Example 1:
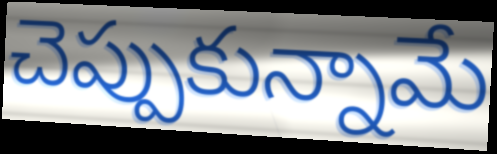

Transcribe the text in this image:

చెప్పుకున్నామే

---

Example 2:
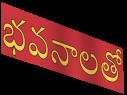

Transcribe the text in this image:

భవనాలతో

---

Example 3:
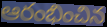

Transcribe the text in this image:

ఆరంభించిన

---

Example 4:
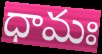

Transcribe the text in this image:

ధామః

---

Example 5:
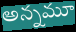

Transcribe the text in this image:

అన్నమూ